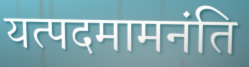
यत्पदमामनंति